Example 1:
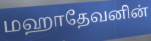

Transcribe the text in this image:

மஹாதேவனின்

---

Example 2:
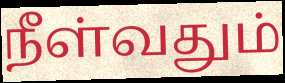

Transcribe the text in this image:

நீள்வதும்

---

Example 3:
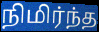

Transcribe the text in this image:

நிமிர்ந்த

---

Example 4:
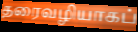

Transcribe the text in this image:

தரைவழியாகப்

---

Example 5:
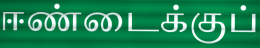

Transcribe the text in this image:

ஈண்டைக்குப்